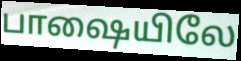
பாஷையிலே